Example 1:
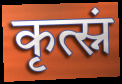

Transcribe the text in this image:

कृत्स्नं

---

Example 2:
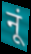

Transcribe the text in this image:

नूं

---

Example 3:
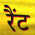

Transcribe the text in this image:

रैंट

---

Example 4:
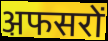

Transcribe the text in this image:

अ़फसरों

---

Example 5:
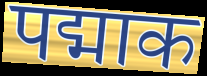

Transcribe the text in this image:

पद्माक